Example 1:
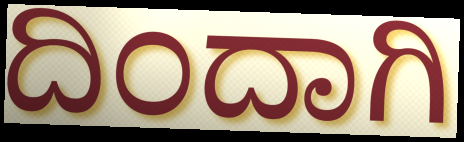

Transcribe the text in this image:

ದಿಂದಾಗಿ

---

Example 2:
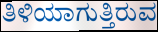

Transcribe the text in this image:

ತಿಳಿಯಾಗುತ್ತಿರುವ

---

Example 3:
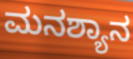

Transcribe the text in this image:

ಮನಶ್ಯಾನ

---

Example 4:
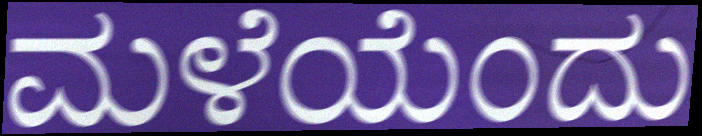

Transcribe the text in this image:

ಮಳೆಯೆಂದು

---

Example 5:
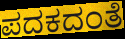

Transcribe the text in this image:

ಪದಕದಂತೆ